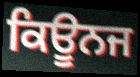
ਕਿਊਨਜ